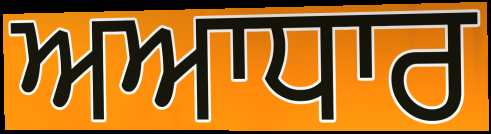
ਅਆਧਾਰ